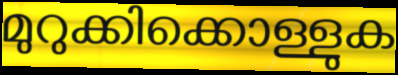
മുറുക്കിക്കൊള്ളുക